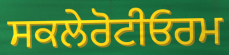
ਸਕਲੇਰੋਟੀਓਰਮ